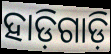
ହାଡ଼ିଗାଡ଼ି